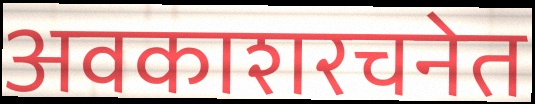
अवकाशरचनेत